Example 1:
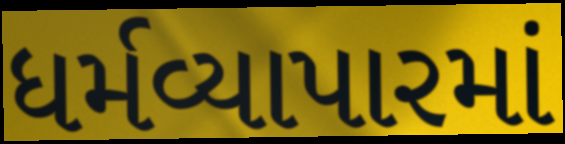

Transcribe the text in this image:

ધર્મવ્યાપારમાં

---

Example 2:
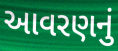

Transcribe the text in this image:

આવરણનું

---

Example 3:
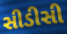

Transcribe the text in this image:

સીડીસી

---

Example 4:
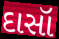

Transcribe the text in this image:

દાસૉ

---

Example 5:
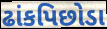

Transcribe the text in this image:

ઢાંકપિછોડા